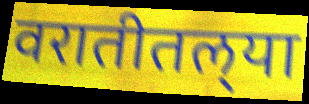
वरातीतल्या